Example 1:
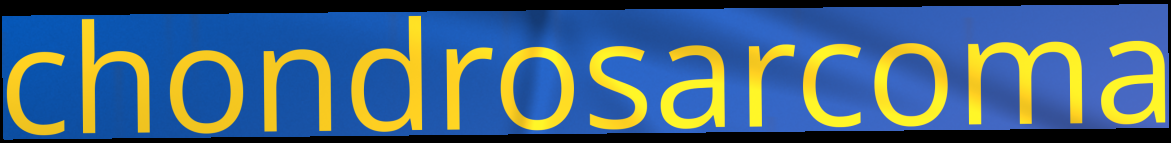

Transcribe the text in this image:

chondrosarcoma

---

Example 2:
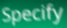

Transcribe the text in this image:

Specify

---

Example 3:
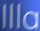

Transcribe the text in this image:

Illa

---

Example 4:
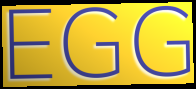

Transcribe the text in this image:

EGG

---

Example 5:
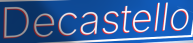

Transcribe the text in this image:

Decastello